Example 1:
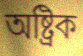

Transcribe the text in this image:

অষ্ট্ৰিক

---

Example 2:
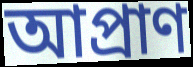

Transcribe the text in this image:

আপ্ৰাণ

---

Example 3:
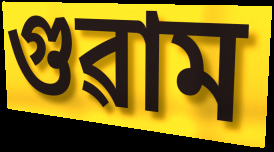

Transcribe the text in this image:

গুৱাম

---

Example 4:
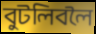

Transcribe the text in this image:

বুটলিবলৈ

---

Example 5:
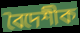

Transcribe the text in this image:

বৈদেশীক